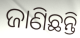
ଜାଣିଛନ୍ତି